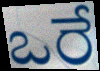
ఒరే